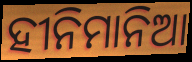
ହୀନିମାନିଆ